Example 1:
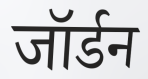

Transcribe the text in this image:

जॉर्डन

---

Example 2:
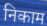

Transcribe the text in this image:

निकाम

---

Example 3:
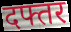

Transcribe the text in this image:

दफ्तर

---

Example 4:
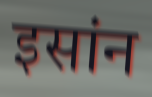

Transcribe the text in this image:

इसांन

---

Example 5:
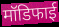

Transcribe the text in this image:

मॉडिफाई